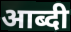
आब्दी